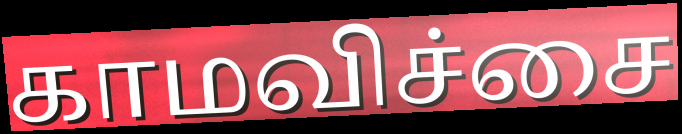
காமவிச்சை